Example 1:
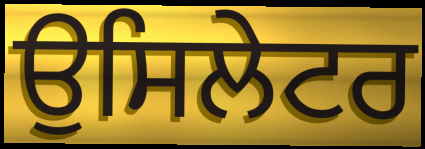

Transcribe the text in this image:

ਉਸਿਲੇਟਰ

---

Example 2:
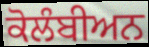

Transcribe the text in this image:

ਕੋਲੰਬੀਅਨ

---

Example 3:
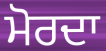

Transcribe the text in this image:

ਮੋਰਦਾ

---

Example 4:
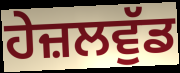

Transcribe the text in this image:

ਹੇਜ਼ਲਵੁੱਡ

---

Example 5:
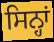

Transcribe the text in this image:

ਸਿਨ੍ਹਾਂ